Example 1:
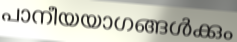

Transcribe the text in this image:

പാനീയയാഗങ്ങൾക്കും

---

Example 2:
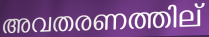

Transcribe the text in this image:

അവതരണത്തില്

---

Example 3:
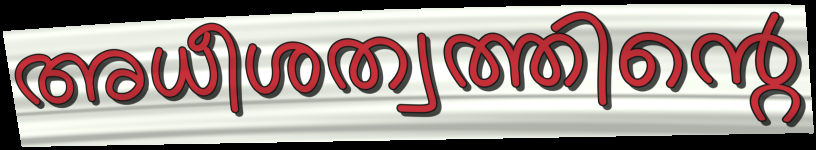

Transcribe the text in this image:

അധീശത്വത്തിന്റെ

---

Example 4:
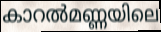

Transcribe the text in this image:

കാറൽമണ്ണയിലെ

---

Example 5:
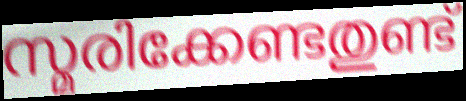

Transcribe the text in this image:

സ്മരിക്കേണ്ടതുണ്ട്